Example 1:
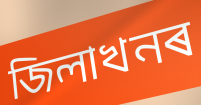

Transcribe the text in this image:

জিলাখনৰ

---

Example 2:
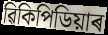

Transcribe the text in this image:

ৱিকিপিডিয়াৰ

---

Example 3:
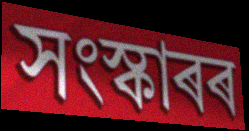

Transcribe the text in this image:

সংস্কাৰৰ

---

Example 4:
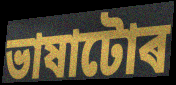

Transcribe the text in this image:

ভাষাটোৰ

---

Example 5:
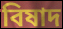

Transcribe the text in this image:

বিষাদ